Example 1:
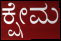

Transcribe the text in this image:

ಕ್ಷೇಮ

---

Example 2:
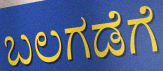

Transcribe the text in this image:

ಬಲಗಡೆಗೆ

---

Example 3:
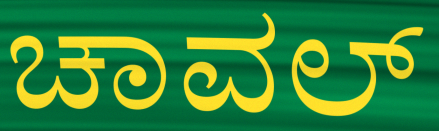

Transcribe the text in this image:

ಚಾವಲ್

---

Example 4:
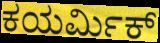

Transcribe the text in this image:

ಕಯರ್ಮಿಕ್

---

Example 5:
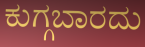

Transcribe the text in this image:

ಕುಗ್ಗಬಾರದು